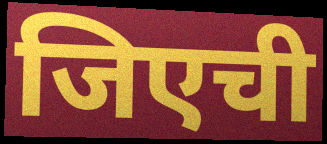
जिएची